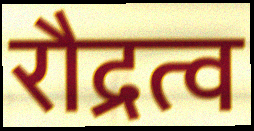
रौद्रत्व